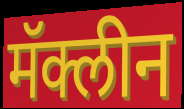
मॅक्लीन